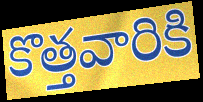
కొత్తవారికి